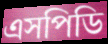
এসপিডি